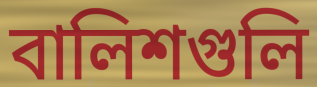
বালিশগুলি